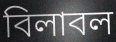
বিলাবল